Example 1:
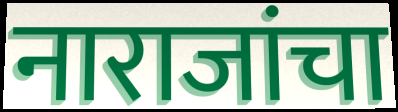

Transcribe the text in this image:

नाराजांचा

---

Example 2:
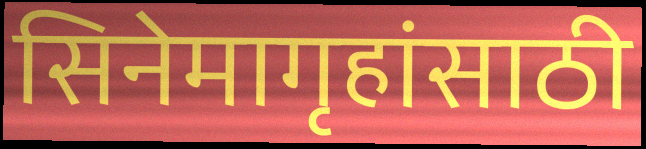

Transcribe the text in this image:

सिनेमागृहांसाठी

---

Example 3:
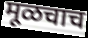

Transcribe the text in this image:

मूळचाच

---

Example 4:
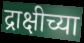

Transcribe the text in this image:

द्राक्षीच्या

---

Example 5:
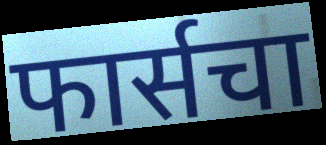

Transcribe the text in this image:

फार्सचा